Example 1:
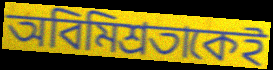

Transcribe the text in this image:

অবিমিশ্রতাকেই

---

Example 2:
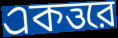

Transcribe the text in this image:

একত্তরে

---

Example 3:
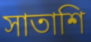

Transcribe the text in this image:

সাতাশি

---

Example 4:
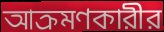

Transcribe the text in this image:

আক্রমণকারীর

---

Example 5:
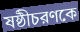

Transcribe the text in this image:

ষষ্ঠীচরণকে